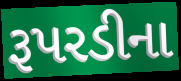
રૂપરડીના